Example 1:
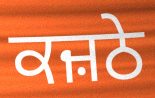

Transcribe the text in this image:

ਕਜ਼ਠੇ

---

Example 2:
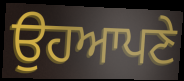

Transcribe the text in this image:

ਉਹਆਪਣੇ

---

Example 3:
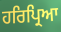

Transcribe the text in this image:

ਹਰਿਪ੍ਰਿਆ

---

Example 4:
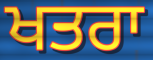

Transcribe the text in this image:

ਖਤਰਾ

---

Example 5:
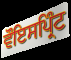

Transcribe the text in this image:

ਵੌਇਸਪ੍ਰਿੰਟ